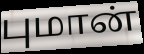
புமான்